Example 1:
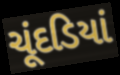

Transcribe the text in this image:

ચૂંદડિયાં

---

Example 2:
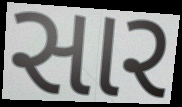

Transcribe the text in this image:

સાર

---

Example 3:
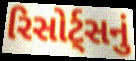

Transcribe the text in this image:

રિસોર્ટ્સનું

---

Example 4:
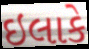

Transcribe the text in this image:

ઇલાકે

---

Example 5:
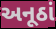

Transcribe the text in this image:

અનૂઠાં